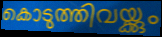
കൊടുത്തിവയ്ക്കും